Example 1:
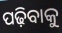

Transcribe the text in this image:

ପଢ଼ିବାକୁ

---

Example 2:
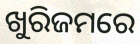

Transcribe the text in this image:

ଖୁରିଜମରେ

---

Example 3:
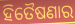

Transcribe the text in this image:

ହିତୈଷଣାର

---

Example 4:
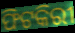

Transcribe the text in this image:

ଫିଟକିରୀ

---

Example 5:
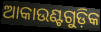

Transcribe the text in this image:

ଆକାଉଣ୍ଟଗୁଡ଼ିକ